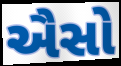
ઐસો